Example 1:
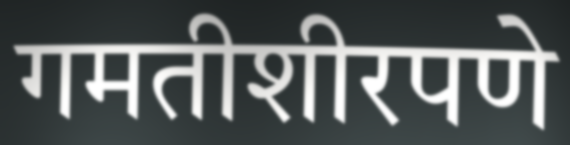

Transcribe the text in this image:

गमतीशीरपणे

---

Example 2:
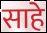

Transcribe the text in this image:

साहे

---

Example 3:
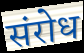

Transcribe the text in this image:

संरोध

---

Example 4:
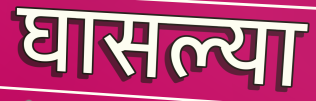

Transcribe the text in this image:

घासल्या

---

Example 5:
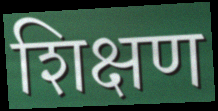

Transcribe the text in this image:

शिक्षण